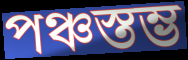
পঞ্চস্তম্ভ